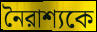
নৈরাশ্যকে